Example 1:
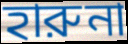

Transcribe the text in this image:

হারুনা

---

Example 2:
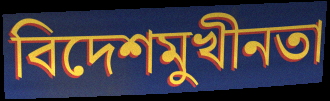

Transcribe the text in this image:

বিদেশমুখীনতা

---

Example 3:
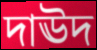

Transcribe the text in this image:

দাঊদ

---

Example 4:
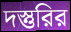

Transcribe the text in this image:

দস্তুরির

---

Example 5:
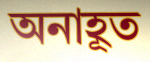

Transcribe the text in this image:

অনাহূত